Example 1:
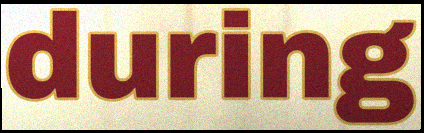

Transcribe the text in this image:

during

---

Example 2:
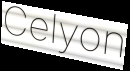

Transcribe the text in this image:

Celyon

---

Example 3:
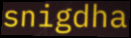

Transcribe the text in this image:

snigdha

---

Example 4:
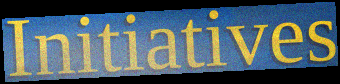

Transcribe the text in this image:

Initiatives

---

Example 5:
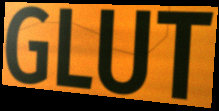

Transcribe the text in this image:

GLUT